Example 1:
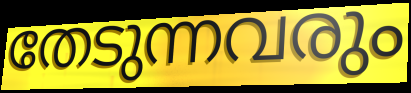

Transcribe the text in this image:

തേടുന്നവരും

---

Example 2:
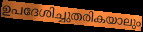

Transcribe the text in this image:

ഉപദേശിച്ചുതരികയാലും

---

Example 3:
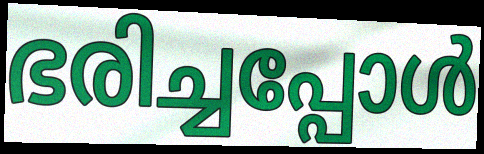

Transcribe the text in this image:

ഭരിച്ചപ്പോൾ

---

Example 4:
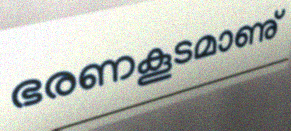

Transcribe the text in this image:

ഭരണകൂടമാണു്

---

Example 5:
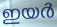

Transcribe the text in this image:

ഇയർ